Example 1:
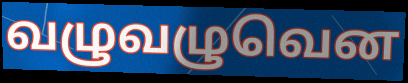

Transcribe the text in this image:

வழுவழுவென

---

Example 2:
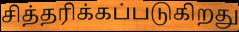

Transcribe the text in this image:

சித்தரிக்கப்படுகிறது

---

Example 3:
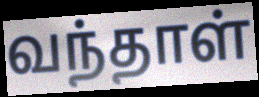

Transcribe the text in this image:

வந்தாள்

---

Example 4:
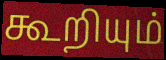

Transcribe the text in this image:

கூறியும்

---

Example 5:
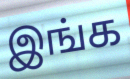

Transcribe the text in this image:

இங்க